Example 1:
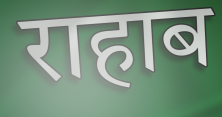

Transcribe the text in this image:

राहाब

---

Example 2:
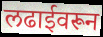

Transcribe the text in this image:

लढाईवरून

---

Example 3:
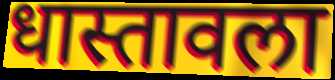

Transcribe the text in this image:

धास्तावला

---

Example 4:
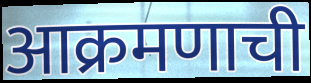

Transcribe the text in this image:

आक्रमणाची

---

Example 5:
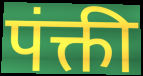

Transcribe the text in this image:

पंक्ती